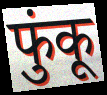
फुंकू